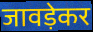
जावड़ेकर